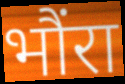
भौंरा